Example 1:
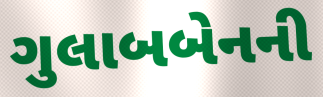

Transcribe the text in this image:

ગુલાબબેનની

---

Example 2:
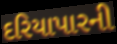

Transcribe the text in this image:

દરિયાપારની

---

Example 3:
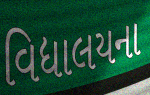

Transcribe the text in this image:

વિદ્યાલયના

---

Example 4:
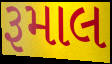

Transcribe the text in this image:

રૂમાલ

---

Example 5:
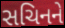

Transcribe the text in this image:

સચિનને